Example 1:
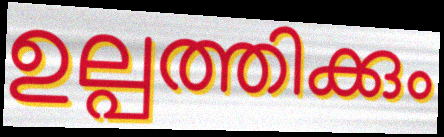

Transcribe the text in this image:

ഉല്പത്തിക്കും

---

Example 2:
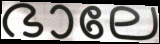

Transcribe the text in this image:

ഭാലേ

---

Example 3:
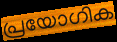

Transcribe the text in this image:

പ്രയോഗിക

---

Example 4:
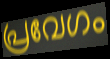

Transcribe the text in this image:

പ്രവേഗം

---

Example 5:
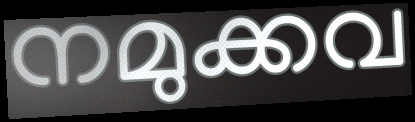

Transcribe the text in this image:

നമുക്കവ